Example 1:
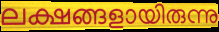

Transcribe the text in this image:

ലക്ഷങ്ങളായിരുന്നു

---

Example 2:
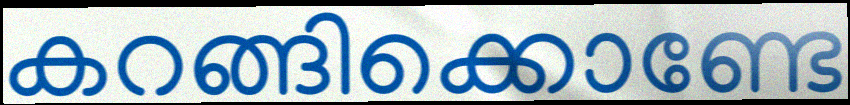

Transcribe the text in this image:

കറങ്ങിക്കൊണ്ടേ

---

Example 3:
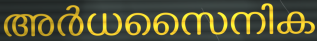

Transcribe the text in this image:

അർധസൈനിക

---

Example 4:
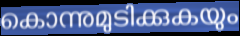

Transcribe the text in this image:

കൊന്നുമുടിക്കുകയും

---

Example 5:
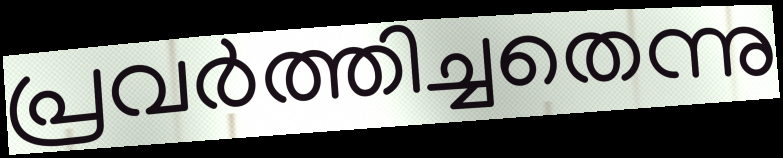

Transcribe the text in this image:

പ്രവർത്തിച്ചതെന്നു